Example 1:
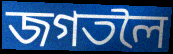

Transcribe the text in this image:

জগতলৈ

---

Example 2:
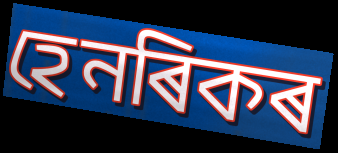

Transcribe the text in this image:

হেনৰিকৰ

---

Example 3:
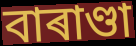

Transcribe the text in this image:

বাৰাণ্ডা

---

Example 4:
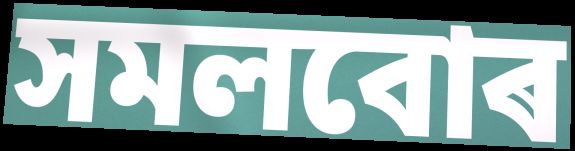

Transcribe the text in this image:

সমলবোৰ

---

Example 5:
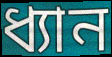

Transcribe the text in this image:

ধ্যান